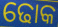
ଢୋକ